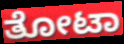
ತೋಟಾ